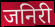
जनिरी